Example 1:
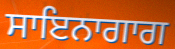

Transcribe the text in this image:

ਸਾਇਨਾਗਾਗ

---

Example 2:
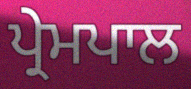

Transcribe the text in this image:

ਪ੍ਰੇਮਪਾਲ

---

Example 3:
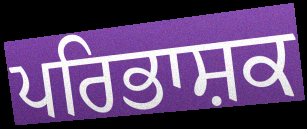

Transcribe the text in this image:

ਪਰਿਭਾਸ਼ਕ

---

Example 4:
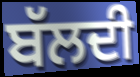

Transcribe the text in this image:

ਬੱਲਦੀ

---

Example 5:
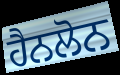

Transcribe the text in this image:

ਹੈਨਲੋਨ